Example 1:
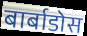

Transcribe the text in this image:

बार्बाडोस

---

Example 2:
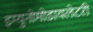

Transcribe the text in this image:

इम्युनोमोडायलेटरी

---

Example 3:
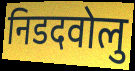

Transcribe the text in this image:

निडदवोलु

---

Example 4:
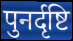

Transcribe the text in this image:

पुनर्दृष्टि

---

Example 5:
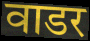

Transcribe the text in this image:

वाडर